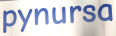
pynursa